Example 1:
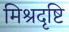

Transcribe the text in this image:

मिश्रदृष्टि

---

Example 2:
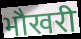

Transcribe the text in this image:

भौखरी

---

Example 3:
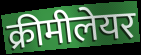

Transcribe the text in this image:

क्रीमीलेयर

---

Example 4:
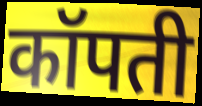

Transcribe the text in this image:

कॉपती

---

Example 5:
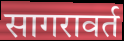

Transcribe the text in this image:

सागरावर्त